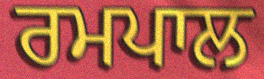
ਰਮਪਾਲ